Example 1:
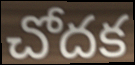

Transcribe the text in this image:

చోదక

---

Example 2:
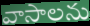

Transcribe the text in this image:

వాసాలను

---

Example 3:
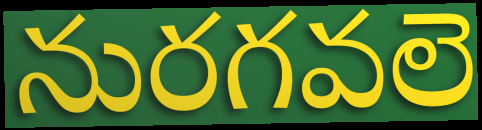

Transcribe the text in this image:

నురగవలె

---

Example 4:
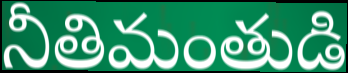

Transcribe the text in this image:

నీతిమంతుడి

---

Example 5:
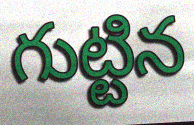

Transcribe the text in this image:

గుట్టిన